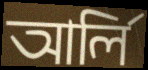
আৰ্লি